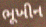
ભૂખીન